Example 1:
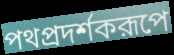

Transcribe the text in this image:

পথপ্রদর্শকরূপে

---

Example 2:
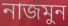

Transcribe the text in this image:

নাজমুন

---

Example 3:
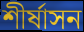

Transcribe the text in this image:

শীর্ষাসন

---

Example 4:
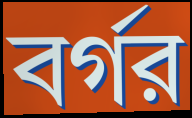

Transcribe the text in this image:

বর্গর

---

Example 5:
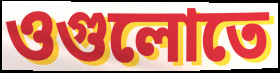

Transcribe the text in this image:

ওগুলোতে